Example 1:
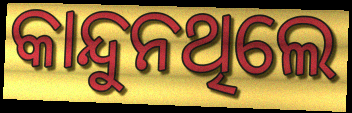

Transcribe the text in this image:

କାନ୍ଦୁନଥିଲେ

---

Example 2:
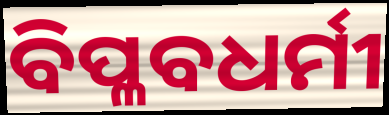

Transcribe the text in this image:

ବିପ୍ଳବଧର୍ମୀ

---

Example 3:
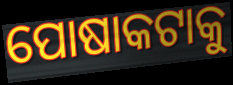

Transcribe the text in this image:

ପୋଷାକଟାକୁ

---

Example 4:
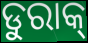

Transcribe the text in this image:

ଡୁରାକ୍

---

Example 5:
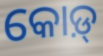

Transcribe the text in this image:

କୋଡ଼୍